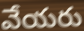
వేయరు